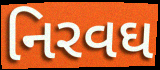
નિરવઘ